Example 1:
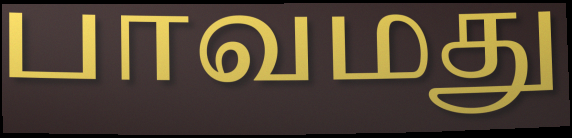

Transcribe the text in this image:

பாவமது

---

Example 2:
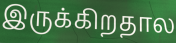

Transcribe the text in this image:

இருக்கிறதால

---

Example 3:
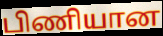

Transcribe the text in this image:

பிணியான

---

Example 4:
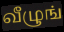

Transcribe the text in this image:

வீழுங்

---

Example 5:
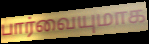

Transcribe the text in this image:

பார்வையுமாக